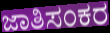
ಜಾತಿಸಂಕರ